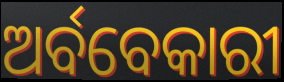
ଅର୍ବବେକାରୀ